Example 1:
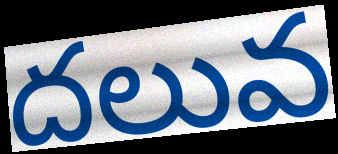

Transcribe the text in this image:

దలువ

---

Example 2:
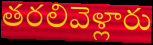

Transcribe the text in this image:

తరలివెళ్లారు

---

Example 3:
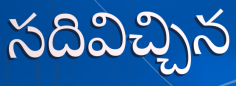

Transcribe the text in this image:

సదివిచ్చిన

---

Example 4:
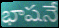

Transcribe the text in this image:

భాషనే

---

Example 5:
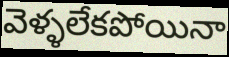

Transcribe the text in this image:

వెళ్ళలేకపోయినా